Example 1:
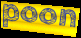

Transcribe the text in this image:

poon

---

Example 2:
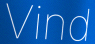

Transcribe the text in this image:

Vind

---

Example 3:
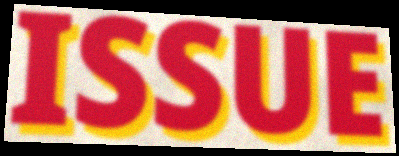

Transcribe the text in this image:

ISSUE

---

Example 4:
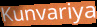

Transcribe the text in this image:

Kunvariya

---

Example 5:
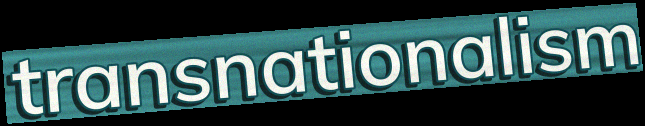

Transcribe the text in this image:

transnationalism